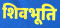
शिवभूति